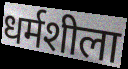
धर्मशीला